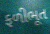
ફળીભૂત